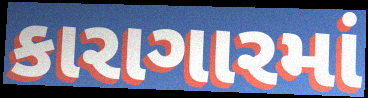
કારાગારમાં